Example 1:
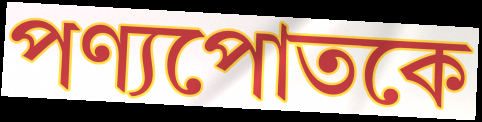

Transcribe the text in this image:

পণ্যপোতকে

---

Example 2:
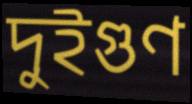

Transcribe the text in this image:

দুইগুণ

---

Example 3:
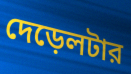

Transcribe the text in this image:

দেড়েলটার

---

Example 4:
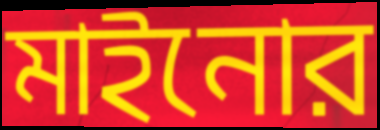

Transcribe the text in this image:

মাইনোর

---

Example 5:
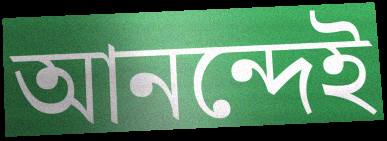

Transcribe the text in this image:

আনন্দেই